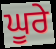
ਘੂਰੇ